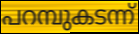
പറമ്പുകടന്ന്